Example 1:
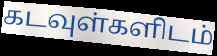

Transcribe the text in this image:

கடவுள்களிடம்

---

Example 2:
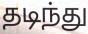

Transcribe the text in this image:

தடிந்து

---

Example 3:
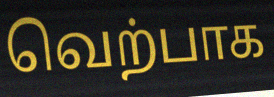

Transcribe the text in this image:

வெற்பாக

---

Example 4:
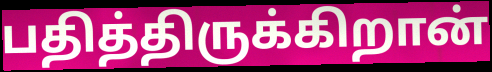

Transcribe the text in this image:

பதித்திருக்கிறான்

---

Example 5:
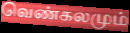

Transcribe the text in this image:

வெண்கலமும்